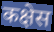
कक्षेस